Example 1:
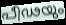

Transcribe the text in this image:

പീഢയും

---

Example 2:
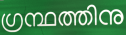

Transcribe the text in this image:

ഗ്രന്ഥത്തിനു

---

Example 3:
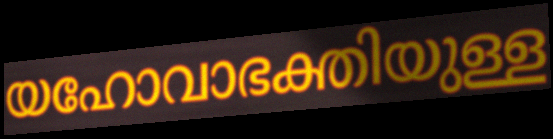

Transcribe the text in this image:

യഹോവാഭക്തിയുള്ള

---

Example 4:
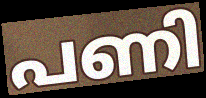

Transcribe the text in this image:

പണി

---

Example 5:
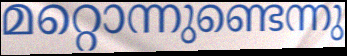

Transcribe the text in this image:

മറ്റൊന്നുണ്ടെന്നു